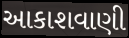
આકાશવાણી